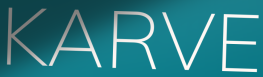
KARVE